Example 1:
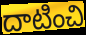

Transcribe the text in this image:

దాటించి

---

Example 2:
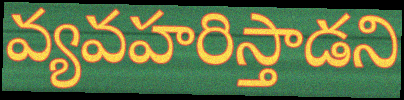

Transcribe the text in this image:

వ్యవహరిస్తాడని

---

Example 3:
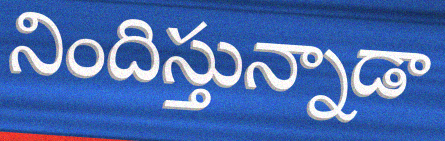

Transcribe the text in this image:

నిందిస్తున్నాడా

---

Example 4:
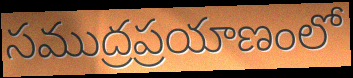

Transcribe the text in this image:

సముద్రప్రయాణంలో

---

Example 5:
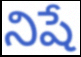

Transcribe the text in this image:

నిషే